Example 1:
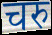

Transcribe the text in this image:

चरु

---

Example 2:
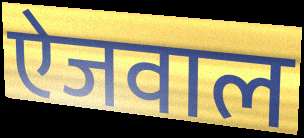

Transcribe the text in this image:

ऐजवाल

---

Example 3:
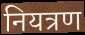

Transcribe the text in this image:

नियत्रण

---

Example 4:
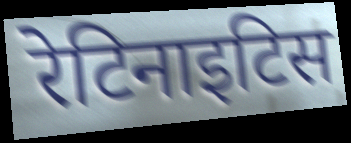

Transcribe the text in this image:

रेटिनाइटिस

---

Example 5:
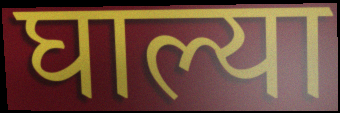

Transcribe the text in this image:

घाल्या